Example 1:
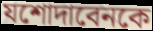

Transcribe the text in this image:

যশোদাবেনকে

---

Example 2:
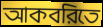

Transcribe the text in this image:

আকবরিতে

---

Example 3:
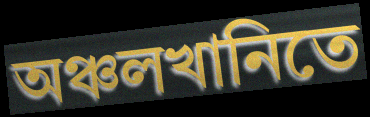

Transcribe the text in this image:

অঞ্চলখানিতে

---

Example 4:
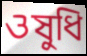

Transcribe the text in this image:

ওষুধি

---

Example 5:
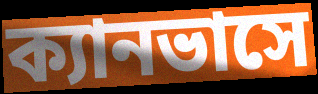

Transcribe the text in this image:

ক্যানভাসে